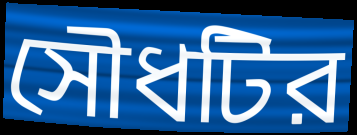
সৌধটির